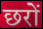
छरों